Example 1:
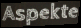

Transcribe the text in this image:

Aspekte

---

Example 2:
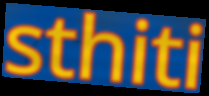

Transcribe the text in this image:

sthiti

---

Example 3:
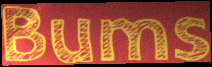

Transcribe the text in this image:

Bums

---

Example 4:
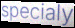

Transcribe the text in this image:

specialy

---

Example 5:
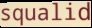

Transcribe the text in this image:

squalid